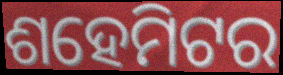
ଶହେମିଟର